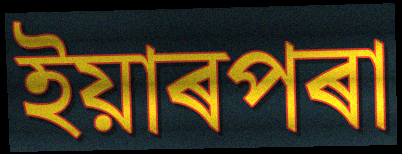
ইয়াৰপৰা